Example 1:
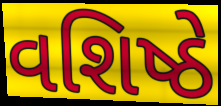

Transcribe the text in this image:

વશિષ્ઠે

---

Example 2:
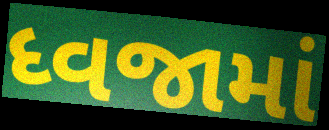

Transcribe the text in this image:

ધ્વજામાં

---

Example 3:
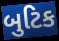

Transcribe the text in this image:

બુટિક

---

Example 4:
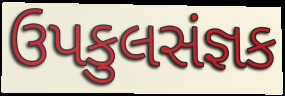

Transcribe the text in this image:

ઉપકુલસંજ્ઞક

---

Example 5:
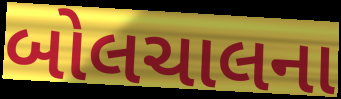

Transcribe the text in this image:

બોલચાલના